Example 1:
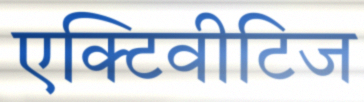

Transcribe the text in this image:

एक्टिवीटिज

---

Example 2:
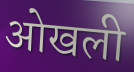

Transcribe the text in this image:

ओखली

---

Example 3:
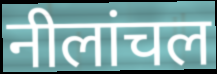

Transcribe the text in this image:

नीलांचल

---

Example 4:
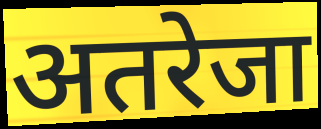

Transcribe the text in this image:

अतरेजा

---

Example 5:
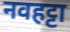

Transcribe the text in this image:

नवहट्टा